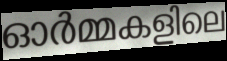
ഓർമ്മകളിലെ